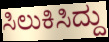
ಸಿಲುಕಿಸಿದ್ದು